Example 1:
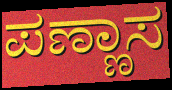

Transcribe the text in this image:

ಪಣ್ಣಾಸ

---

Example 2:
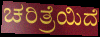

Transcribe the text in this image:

ಚರಿತ್ರೆಯಿದೆ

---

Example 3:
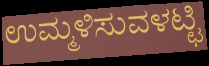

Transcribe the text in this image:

ಉಮ್ಮಳಿಸುವಳಟ್ಟಿ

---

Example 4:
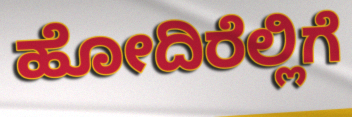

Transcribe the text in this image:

ಹೋದಿರೆಲ್ಲಿಗೆ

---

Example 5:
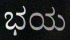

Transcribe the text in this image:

ಭಯ